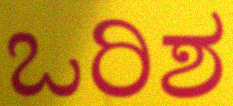
ಒರಿಶ